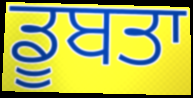
ਡੂਬਤਾ